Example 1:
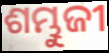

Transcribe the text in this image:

ଶମ୍ଭୁଜୀ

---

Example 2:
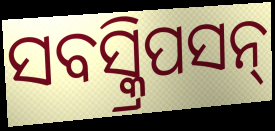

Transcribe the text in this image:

ସବସ୍କ୍ରିପସନ୍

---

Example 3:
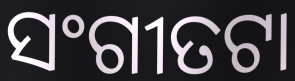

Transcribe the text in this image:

ସଂଗୀତଟା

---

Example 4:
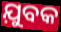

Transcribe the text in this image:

ଯ଼ୁବକ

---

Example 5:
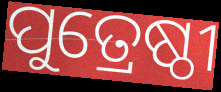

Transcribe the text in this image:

ପୁତ୍ରେଷ୍ଠୀ